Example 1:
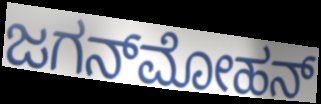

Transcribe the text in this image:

ಜಗನ್‌ಮೋಹನ್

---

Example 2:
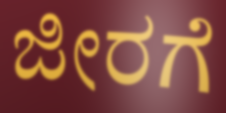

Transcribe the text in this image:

ಜೀರಗೆ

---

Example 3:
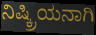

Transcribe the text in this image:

ನಿಷ್ಕ್ರಿಯನಾಗಿ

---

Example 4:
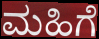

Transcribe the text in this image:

ಮಹಿಗೆ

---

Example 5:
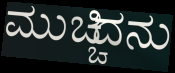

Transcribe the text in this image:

ಮುಚ್ಚಿದನು